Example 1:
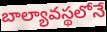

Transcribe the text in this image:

బాల్యావస్థలోనే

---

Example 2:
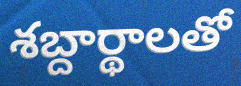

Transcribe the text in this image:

శబ్దార్థాలతో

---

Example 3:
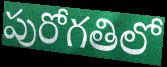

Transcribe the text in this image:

పురోగతిలో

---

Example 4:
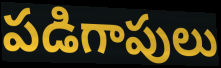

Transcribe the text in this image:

పడిగాపులు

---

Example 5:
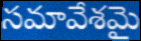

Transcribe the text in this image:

సమావేశమై